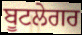
ਬੂਟਲੇਗਰ